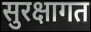
सुरक्षागत